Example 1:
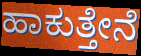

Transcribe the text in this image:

ಹಾಕುತ್ತೇನೆ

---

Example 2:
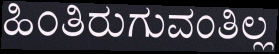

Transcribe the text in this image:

ಹಿಂತಿರುಗುವಂತಿಲ್ಲ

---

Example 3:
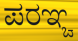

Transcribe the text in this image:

ಪರಞ್ಚ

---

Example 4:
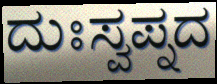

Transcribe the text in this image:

ದುಃಸ್ವಪ್ನದ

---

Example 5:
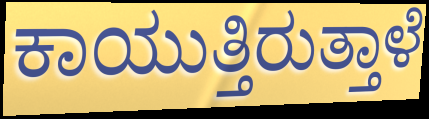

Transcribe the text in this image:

ಕಾಯುತ್ತಿರುತ್ತಾಳೆ